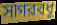
সাগরবধূ